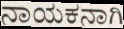
ನಾಯಕನಾಗಿ